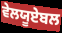
ਵੇਲਯੂਏਬਲ